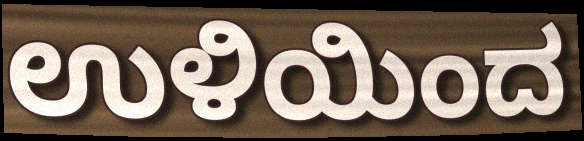
ಉಳಿಯಿಂದ